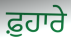
ਫ਼ੁਹਾਰੇ